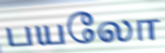
பயலோ